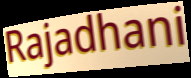
Rajadhani